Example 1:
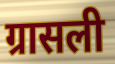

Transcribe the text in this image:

ग्रासली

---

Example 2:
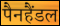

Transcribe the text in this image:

पैनहैंडल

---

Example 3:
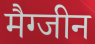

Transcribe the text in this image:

मैग्जीन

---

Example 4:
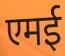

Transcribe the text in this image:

एमई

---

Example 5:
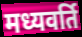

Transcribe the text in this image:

मध्यवर्ति